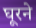
घूरने